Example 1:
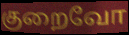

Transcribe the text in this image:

குறைவோ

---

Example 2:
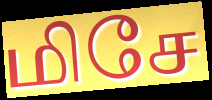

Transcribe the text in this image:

மிசே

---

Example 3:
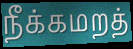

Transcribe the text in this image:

நீக்கமறத்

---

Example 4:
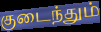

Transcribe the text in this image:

குடைந்தும்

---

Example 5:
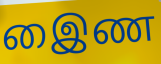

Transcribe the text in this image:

இைண